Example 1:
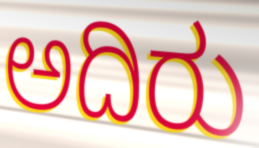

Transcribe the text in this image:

ಅದಿರು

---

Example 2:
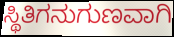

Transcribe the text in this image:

ಸ್ಥಿತಿಗನುಗುಣವಾಗಿ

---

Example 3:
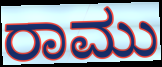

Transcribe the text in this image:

ರಾಮು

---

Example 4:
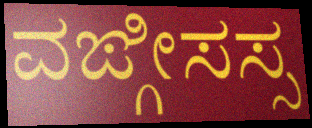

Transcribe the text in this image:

ವಙ್ಗೀಸಸ್ಸ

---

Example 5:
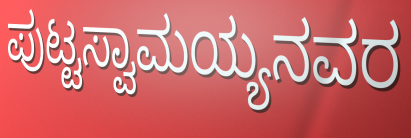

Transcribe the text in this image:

ಪುಟ್ಟಸ್ವಾಮಯ್ಯನವರ